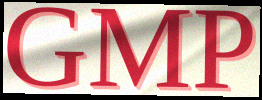
GMP